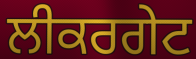
ਲੀਕਰਗੇਟ